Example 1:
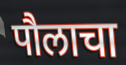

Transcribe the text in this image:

पौलाचा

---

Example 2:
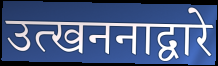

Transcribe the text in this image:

उत्खननाद्वारे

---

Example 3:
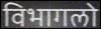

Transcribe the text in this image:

विभागलो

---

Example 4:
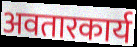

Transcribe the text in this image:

अवतारकार्य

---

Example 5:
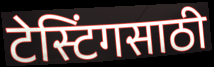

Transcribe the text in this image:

टेस्टिंगसाठी